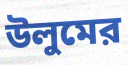
উলুমের